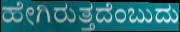
ಹೇಗಿರುತ್ತದೆಂಬುದು